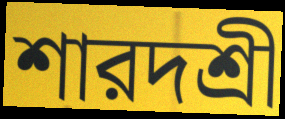
শারদশ্রী